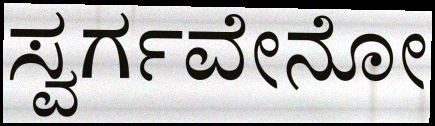
ಸ್ವರ್ಗವೇನೋ